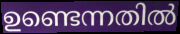
ഉണ്ടെന്നതിൽ